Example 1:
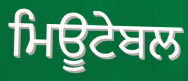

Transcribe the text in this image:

ਮਿਊਟੇਬਲ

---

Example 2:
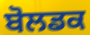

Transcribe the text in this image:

ਬੋਲਡਕ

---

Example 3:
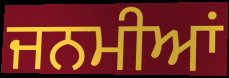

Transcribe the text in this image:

ਜਨਮੀਆਂ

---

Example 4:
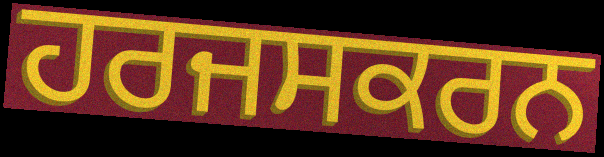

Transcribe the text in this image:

ਹਰਜਸਕਰਨ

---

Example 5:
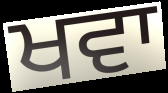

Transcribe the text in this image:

ਖਵਾ